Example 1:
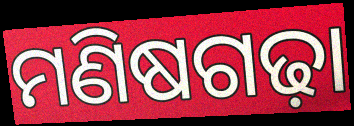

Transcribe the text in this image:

ମଣିଷଗଢ଼ା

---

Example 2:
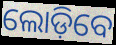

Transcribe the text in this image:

ଲୋଡ଼ିବେ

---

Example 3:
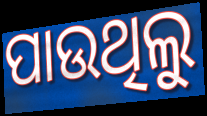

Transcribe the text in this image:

ପାଉଥିଲୁ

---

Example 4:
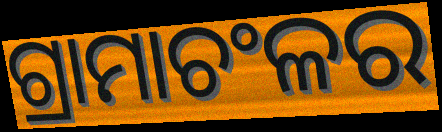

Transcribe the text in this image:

ଗ୍ରାମାଚଂଳର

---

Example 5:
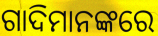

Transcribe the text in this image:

ଗାଦିମାନଙ୍କରେ